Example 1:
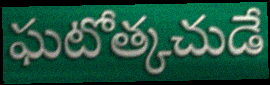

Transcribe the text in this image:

ఘటోత్కచుడే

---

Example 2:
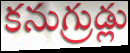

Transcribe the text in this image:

కనుగ్రుడ్లు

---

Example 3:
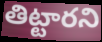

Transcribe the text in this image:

తిట్టారని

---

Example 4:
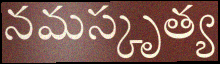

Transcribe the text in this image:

నమస్కృత్య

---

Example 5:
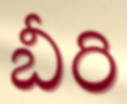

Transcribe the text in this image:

బీరి